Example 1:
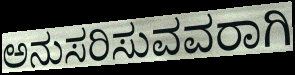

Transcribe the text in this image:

ಅನುಸರಿಸುವವರಾಗಿ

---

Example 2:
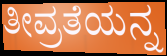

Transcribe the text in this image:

ತೀವ್ರತೆಯನ್ನ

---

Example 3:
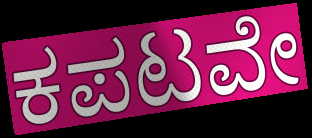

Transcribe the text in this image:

ಕಪಟವೇ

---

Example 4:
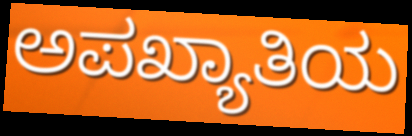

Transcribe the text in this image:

ಅಪಖ್ಯಾತಿಯ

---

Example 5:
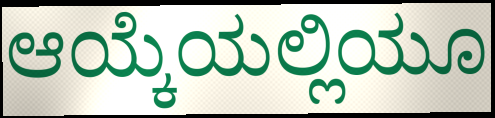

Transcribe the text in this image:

ಆಯ್ಕೆಯಲ್ಲಿಯೂ